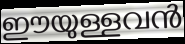
ഈയുള്ളവൻ